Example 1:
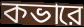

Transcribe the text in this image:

কভারে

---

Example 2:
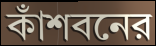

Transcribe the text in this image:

কাঁশবনের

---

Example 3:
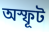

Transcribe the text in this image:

অস্ফূট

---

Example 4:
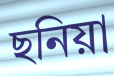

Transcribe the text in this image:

ছনিয়া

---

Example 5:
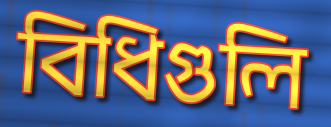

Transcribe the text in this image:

বিধিগুলি